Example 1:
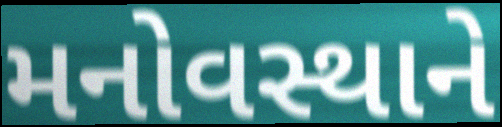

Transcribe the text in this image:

મનોવસ્થાને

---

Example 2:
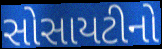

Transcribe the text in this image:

સોસાયટીનો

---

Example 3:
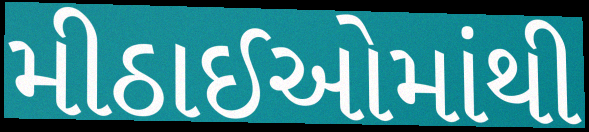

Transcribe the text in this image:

મીઠાઈઓમાંથી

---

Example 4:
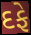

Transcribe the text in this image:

દફે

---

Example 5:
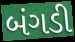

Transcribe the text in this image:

બંગડી